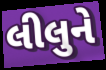
લીલુને